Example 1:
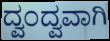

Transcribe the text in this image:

ದ್ವಂದ್ವವಾಗಿ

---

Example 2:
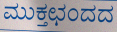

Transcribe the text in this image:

ಮುಕ್ತಛಂದದ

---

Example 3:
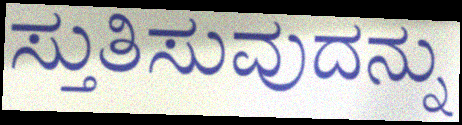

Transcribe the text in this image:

ಸ್ತುತಿಸುವುದನ್ನು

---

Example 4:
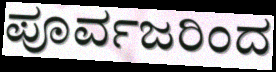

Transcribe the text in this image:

ಪೂರ್ವಜರಿಂದ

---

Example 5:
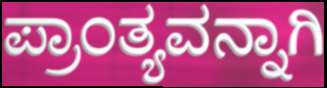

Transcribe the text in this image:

ಪ್ರಾಂತ್ಯವನ್ನಾಗಿ